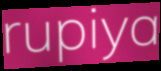
rupiya